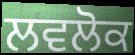
ਲਵਲੋਕ